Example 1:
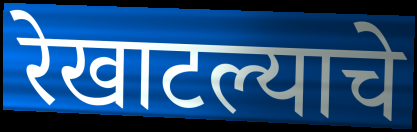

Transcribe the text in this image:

रेखाटल्याचे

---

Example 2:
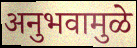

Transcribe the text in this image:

अनुभवामुळे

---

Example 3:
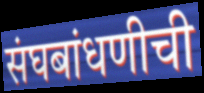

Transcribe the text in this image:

संघबांधणीची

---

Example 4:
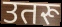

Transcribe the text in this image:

उतरू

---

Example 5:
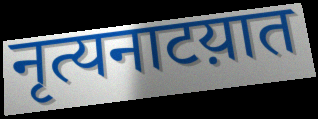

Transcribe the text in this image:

नृत्यनाटय़ात